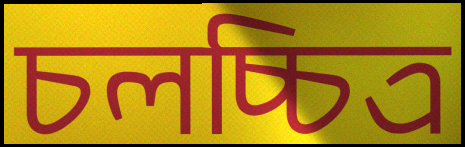
চলচ্চিত্ৰ